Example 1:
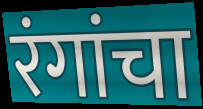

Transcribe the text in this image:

रंगांचा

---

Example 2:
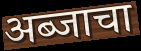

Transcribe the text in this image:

अब्जाचा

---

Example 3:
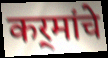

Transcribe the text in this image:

कर्मांचे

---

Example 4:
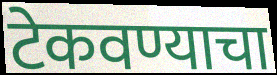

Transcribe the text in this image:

टेकवण्याचा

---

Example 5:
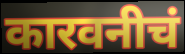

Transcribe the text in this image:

कारवनीचं